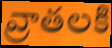
వ్రాతలకి